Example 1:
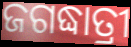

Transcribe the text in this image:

ଜଗଦ୍ଧାତ୍ରୀ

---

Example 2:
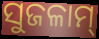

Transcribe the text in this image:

ସୁଜଳାମ୍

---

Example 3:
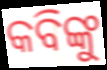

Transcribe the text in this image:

କବିଙ୍କୁ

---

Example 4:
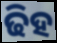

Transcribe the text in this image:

ଢିହ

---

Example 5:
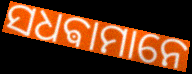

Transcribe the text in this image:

ସଧଵାମାନେ